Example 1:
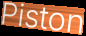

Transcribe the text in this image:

Piston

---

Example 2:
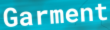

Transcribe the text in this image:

Garment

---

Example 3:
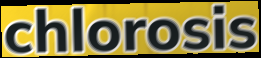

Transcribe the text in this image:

chlorosis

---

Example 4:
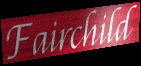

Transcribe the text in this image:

Fairchild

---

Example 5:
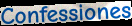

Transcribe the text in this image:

Confessiones